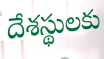
దేశస్థులకు